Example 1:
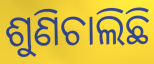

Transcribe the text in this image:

ଶୁଣିଚାଲିଛି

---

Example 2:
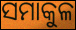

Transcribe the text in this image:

ସମାକୁଳ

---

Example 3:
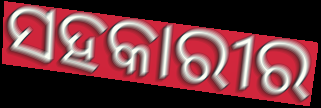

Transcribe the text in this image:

ସହକାରୀର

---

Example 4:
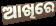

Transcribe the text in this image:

ଆଖିରେ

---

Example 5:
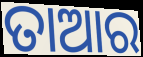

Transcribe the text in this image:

ତାଆର